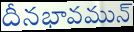
దీనభావమున్